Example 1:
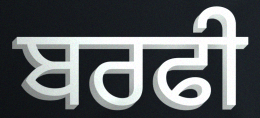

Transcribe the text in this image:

ਬਰਫੀ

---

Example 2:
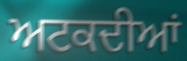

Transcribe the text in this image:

ਅਟਕਦੀਆਂ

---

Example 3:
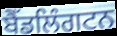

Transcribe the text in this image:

ਬੈੱਡਲਿੰਗਟਨ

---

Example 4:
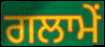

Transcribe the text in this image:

ਗਲਾਮੇਂ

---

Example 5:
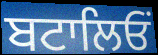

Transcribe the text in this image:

ਬਟਾਲਿਓਂ